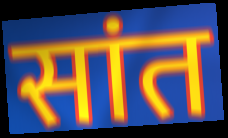
सांत